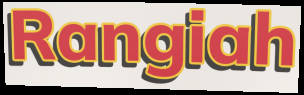
Rangiah